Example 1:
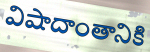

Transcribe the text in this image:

విషాదాంతానికి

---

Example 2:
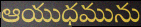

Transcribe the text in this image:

ఆయుధమును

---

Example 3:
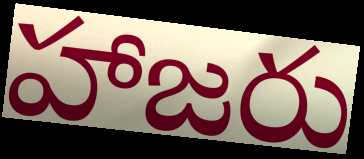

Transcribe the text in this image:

హాజరు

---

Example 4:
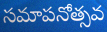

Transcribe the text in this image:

సమాపనోత్సవ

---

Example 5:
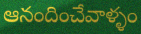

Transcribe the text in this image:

ఆనందించేవాళ్ళం